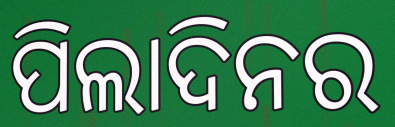
ପିଲାଦିନର